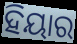
ହିୟାର